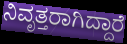
ನಿವೃತ್ತರಾಗಿದ್ದಾರೆ